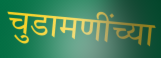
चुडामणींच्या